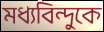
মধ্যবিন্দুকে